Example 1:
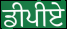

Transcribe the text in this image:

ਡੀਪੀਏ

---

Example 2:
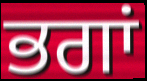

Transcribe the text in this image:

ਭਗਾਂ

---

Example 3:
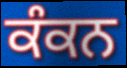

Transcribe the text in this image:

ਕੰਕਨ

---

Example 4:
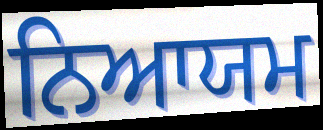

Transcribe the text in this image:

ਨਿਆਯਮ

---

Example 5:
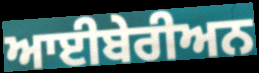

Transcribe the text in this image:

ਆਈਬੇਰੀਅਨ